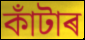
কাঁটাৰ